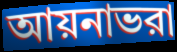
আয়নাভরা